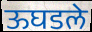
ऊघडले